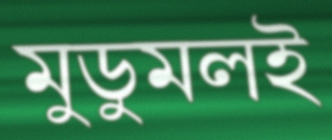
মুডুমলই